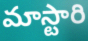
మాస్టారి